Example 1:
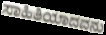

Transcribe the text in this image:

ಸಾಹಿತಿಯಾದವನು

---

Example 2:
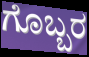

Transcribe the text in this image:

ಗೊಬ್ಬರ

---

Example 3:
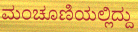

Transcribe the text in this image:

ಮಂಚೂಣಿಯಲ್ಲಿದ್ದು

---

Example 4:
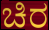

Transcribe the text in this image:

ಚಿರ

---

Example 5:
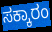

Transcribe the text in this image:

ಸಕ್ಕಾರಂ